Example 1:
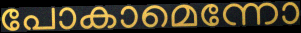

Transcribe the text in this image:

പോകാമെന്നോ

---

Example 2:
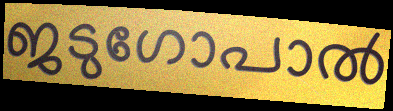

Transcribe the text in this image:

ജടുഗോപാൽ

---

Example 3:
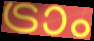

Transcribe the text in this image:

ട്രാം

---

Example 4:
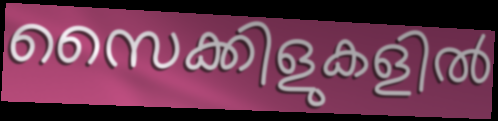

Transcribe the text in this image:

സൈക്കിളുകളിൽ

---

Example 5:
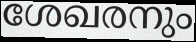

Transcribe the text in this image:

ശേഖരനും